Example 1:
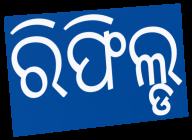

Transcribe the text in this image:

ରିଫିଲ୍ଡ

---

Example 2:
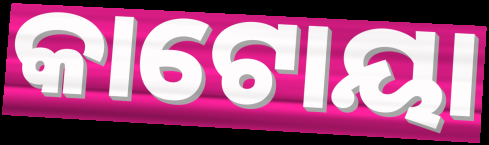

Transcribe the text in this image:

କାଟୋୟା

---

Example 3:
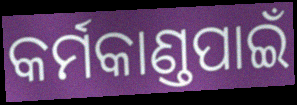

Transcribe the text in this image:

କର୍ମକାଣ୍ଡପାଇଁ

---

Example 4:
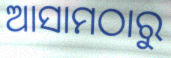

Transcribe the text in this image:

ଆସାମଠାରୁ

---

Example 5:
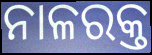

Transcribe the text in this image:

ନାଳରକ୍ତ